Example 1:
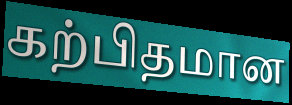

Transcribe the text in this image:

கற்பிதமான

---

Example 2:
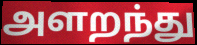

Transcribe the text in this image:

அளறந்து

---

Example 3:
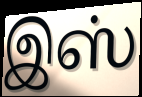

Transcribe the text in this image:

இஸ்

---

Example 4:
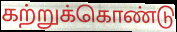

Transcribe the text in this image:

கற்றுக்கொண்டு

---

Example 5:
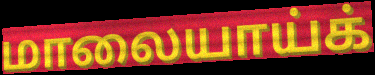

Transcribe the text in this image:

மாலையாய்க்